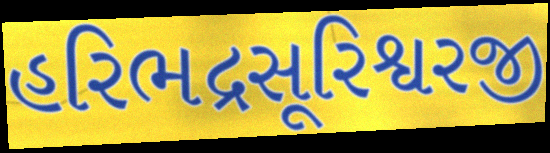
હરિભદ્રસૂરિશ્વરજી